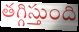
తగ్గిస్తుంది